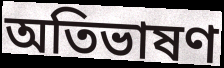
অতিভাষণ